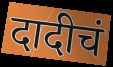
दादीचं